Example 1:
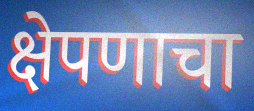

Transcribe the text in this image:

क्षेपणाचा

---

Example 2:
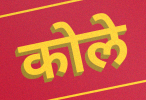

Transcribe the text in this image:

कोले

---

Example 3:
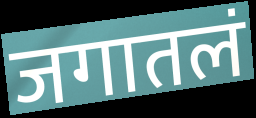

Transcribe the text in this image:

जगातलं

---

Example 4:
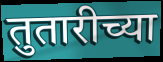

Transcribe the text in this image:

तुतारीच्या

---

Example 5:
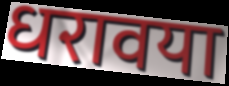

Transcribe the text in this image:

धरावया